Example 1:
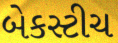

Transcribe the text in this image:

બેકસ્ટીચ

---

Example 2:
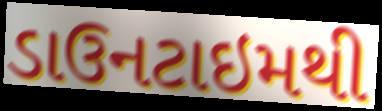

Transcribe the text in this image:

ડાઉનટાઇમથી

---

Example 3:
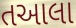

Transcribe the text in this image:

તઆલા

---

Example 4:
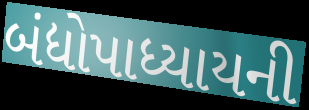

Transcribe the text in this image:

બંદ્યોપાધ્યાયની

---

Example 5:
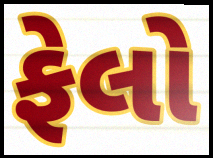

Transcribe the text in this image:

ફેલો